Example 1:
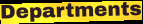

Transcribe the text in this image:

Departments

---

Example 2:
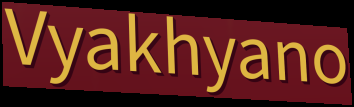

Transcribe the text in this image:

Vyakhyano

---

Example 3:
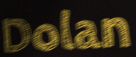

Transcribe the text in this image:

Dolan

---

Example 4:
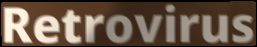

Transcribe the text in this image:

Retrovirus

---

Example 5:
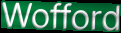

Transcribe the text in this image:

Wofford